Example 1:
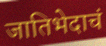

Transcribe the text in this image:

जातिभेदाचं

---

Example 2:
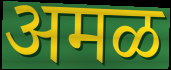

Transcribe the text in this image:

अमळ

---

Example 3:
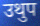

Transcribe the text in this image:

उथुप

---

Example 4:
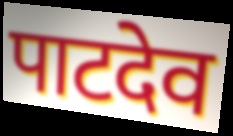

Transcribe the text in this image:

पाटदेव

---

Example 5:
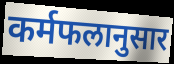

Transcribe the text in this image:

कर्मफलानुसार